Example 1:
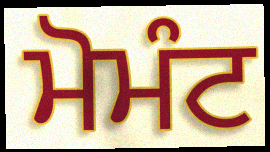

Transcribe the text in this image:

ਮੋਮੰਟ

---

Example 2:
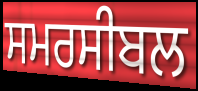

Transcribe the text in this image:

ਸਮਰਸੀਬਲ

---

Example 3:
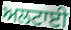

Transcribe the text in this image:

ਅਲਟਾਈ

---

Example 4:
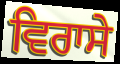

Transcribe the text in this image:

ਵਿਰਾਸੇ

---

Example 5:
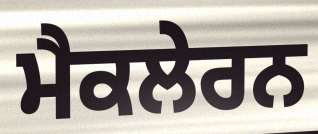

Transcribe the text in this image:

ਮੈਕਲੇਰਨ